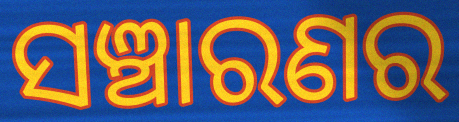
ସଞ୍ଚାରଣର